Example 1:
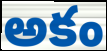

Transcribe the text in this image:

అకం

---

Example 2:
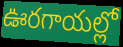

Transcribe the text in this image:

ఊరగాయల్లో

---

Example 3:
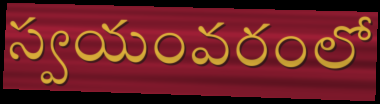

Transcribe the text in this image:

స్వయంవరంలో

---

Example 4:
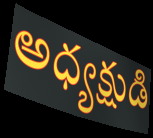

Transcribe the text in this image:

అధ్యక్షుడి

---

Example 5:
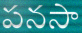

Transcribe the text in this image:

పనసా